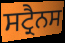
ਸਟ੍ਰੈਨਸ